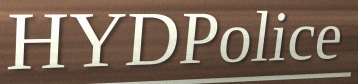
HYDPolice